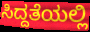
ಸಿದ್ದತೆಯಲ್ಲಿ